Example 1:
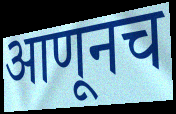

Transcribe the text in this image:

आणूनच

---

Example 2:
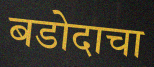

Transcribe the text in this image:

बडोदाचा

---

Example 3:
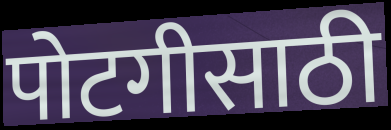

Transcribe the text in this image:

पोटगीसाठी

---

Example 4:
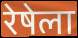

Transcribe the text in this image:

रेषेला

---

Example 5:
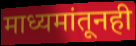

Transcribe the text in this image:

माध्यमांतूनही